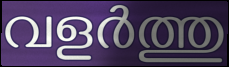
വളർത്തു